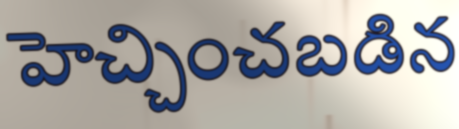
హెచ్చించబడిన